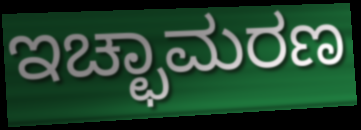
ಇಚ್ಛಾಮರಣ